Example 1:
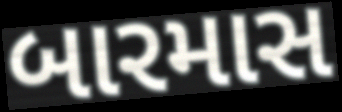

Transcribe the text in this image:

બારમાસ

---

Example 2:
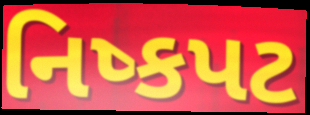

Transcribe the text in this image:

નિષ્કપટ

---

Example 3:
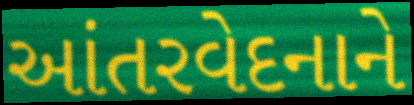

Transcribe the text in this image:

આંતરવેદનાને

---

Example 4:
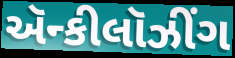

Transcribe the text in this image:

ઍન્કીલૉઝીંગ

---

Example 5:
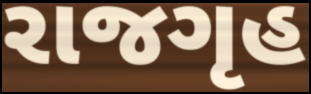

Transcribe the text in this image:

રાજગૃહ